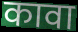
कावा